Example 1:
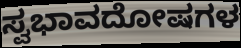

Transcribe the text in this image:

ಸ್ವಭಾವದೋಷಗಳ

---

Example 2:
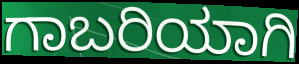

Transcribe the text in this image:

ಗಾಬರಿಯಾಗಿ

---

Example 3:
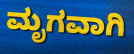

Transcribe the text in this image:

ಮೃಗವಾಗಿ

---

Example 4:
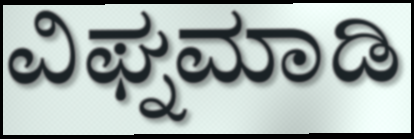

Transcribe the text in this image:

ವಿಘ್ನಮಾಡಿ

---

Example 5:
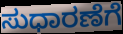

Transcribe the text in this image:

ಸುಧಾರಣೆಗೆ